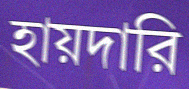
হায়দারি